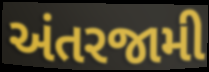
અંતરજામી